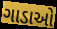
ગાડાઓ